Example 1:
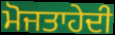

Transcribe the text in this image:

ਮੋਜਤਾਹੇਦੀ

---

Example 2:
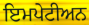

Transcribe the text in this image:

ਇਮਪੇਟੀਅਨ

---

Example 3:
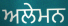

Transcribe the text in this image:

ਅਲੇਮਨ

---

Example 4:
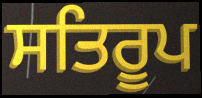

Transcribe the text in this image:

ਸਤਿਰੂਪ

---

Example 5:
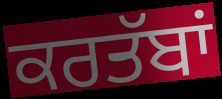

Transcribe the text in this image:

ਕਰਤੱਬਾਂ